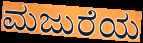
ಮಜುರೆಯ